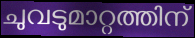
ചുവടുമാറ്റത്തിന്